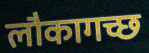
लौकागच्छ